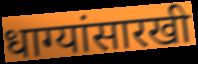
धाग्यांसारखी